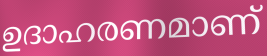
ഉദാഹരണമാണ്